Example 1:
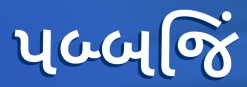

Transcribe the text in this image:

પબ્બજિં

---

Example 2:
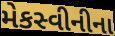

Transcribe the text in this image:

મેકસ્વીનીના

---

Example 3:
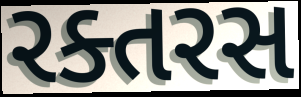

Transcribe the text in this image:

રક્તરસ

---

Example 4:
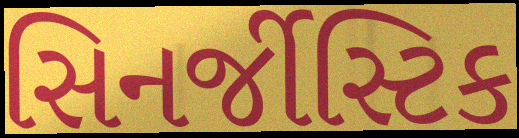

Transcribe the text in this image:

સિનર્જીસ્ટિક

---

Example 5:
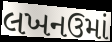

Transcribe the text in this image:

લખનઉમાં